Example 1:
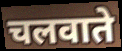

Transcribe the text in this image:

चलवाते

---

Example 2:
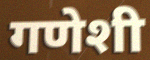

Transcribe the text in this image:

गणेशी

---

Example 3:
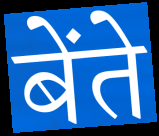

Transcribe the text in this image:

बेंते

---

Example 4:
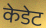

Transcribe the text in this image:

केडेट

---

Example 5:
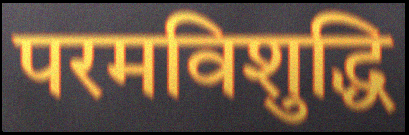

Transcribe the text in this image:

परमविशुद्धि